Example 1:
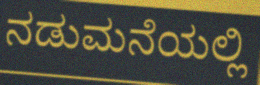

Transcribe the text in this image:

ನಡುಮನೆಯಲ್ಲಿ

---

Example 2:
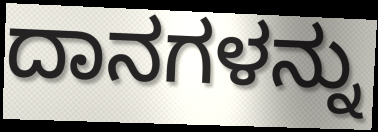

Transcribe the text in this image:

ದಾನಗಳನ್ನು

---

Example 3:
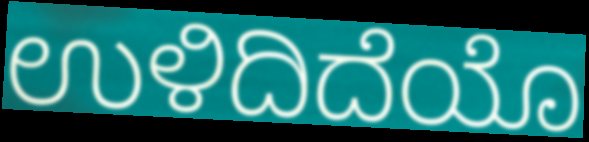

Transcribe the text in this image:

ಉಳಿದಿದೆಯೊ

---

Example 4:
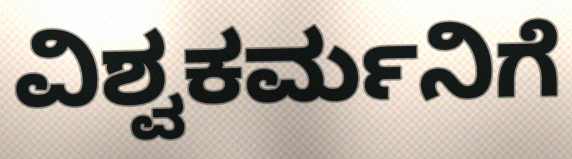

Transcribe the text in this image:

ವಿಶ್ವಕರ್ಮನಿಗೆ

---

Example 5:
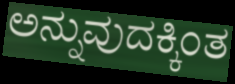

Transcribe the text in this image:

ಅನ್ನುವುದಕ್ಕಿಂತ